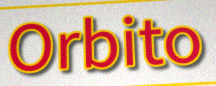
Orbito